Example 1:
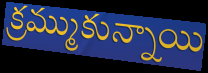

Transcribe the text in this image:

క్రమ్ముకున్నాయి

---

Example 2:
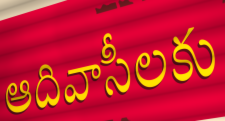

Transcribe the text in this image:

ఆదివాసీలకు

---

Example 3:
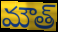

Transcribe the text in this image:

మౌత్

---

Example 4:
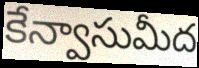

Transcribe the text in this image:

కేన్వాసుమీద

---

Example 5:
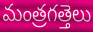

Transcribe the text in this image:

మంత్రగత్తెలు